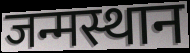
जन्मस्थान